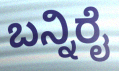
ಬನ್ನಿರೈ